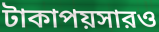
টাকাপয়সারও